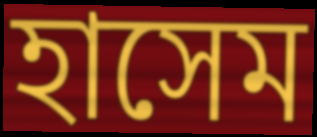
হাসেম